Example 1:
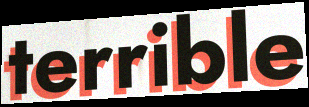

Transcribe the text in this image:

terrible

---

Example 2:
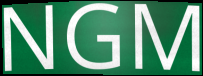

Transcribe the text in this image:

NGM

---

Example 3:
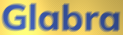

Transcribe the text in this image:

Glabra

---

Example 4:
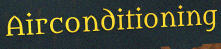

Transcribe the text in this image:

Airconditioning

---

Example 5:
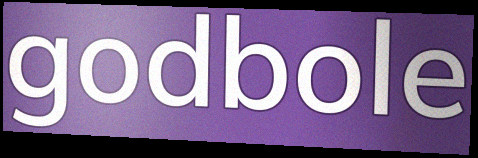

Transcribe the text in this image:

godbole